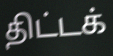
திட்டக்